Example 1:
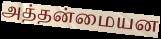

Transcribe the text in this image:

அத்தன்மையன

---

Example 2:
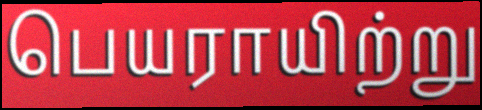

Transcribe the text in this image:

பெயராயிற்று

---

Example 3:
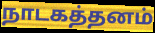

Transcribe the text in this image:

நாடகத்தனம்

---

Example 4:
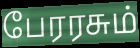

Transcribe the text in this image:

பேரரசும்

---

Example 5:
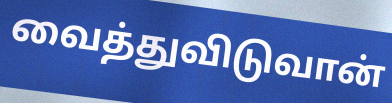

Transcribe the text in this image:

வைத்துவிடுவான்